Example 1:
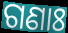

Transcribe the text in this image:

ଗଣାଃ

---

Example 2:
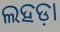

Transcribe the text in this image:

ଲହଡ଼ା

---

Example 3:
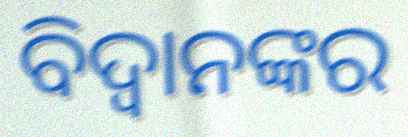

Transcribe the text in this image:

ବିଦ୍ୱାନଙ୍କର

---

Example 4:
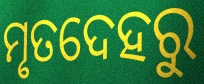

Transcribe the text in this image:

ମୃତଦେହରୁ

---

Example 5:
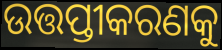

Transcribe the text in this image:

ଉତ୍ତପ୍ତୀକରଣକୁ